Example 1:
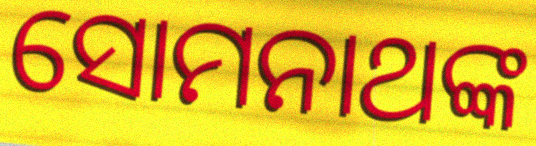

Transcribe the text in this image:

ସୋମନାଥଙ୍କ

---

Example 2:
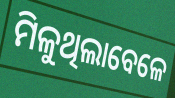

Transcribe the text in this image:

ମିଳୁଥିଲାବେଳେ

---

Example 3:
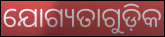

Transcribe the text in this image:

ଯୋଗ୍ୟତାଗୁଡ଼ିକ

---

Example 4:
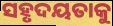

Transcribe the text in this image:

ସହୃଦୟତାକୁ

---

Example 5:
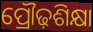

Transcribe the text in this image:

ପ୍ରୌଢ଼ଶିକ୍ଷା